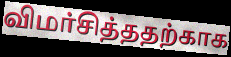
விமர்சித்ததற்காக